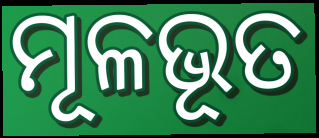
ମୂଳଭୂତ